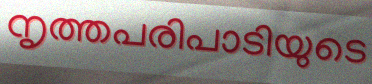
നൃത്തപരിപാടിയുടെ